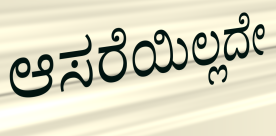
ಆಸರೆಯಿಲ್ಲದೇ